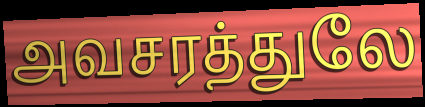
அவசரத்துலே